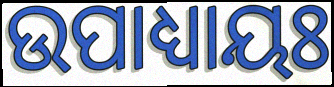
ଉପାଧ୍ୟାୟଃ